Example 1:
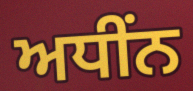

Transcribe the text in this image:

ਅਧੀਂਨ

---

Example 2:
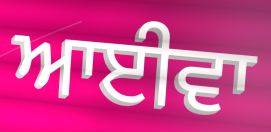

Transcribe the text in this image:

ਆਈਵਾ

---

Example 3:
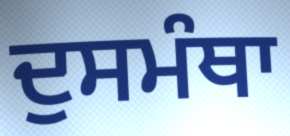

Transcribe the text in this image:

ਦੁਸਮੰਥਾ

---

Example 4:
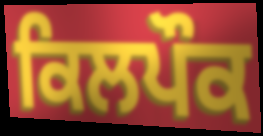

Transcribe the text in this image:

ਕਿਲਪੌਕ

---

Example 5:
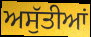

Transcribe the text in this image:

ਅਸੁੱਤੀਆਂ